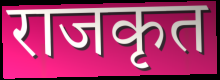
राजकृत